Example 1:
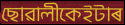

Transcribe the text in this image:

ছোৱালীকেইটাৰ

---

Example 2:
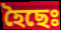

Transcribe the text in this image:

হৈছেঃ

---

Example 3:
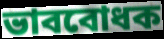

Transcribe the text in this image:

ভাববোধক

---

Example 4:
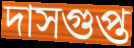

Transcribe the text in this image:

দাসগুপ্ত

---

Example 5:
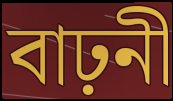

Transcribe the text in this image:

বাঢ়নী